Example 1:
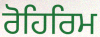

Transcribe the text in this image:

ਰੋਹਿਰਿਮ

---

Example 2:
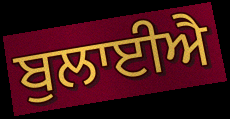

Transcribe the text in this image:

ਬੁਲਾਈਐ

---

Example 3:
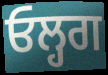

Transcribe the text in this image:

ਓਲ੍ਹਗ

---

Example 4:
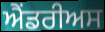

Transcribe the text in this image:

ਐਂਡਰੀਅਸ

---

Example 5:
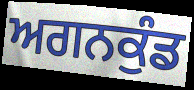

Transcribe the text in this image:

ਅਗਨਕੁੰਡ